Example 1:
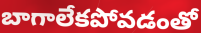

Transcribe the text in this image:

బాగాలేకపోవడంతో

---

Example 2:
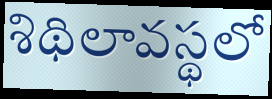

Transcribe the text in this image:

శిథిలావస్థలో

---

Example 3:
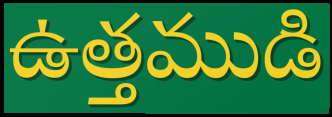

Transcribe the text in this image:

ఉత్తముడి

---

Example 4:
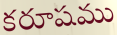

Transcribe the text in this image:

కరూషము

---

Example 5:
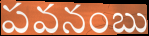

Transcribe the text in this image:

పవనంబు